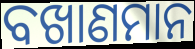
ବଖାଣମାନ